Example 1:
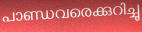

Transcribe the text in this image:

പാണ്ഡവരെക്കുറിച്ചു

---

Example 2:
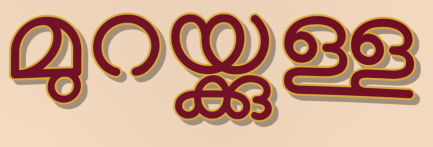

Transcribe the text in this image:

മുറയ്ക്കുള്ള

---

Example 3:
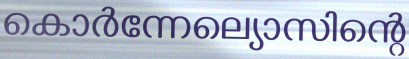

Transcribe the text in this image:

കൊർന്നേല്യൊസിന്റെ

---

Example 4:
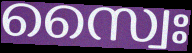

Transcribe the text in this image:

സ്വൈഃ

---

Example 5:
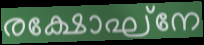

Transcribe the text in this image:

രക്ഷോഘ്നേ